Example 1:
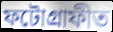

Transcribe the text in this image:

ফটোগ্ৰাফীত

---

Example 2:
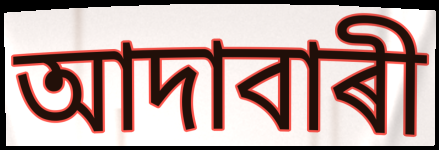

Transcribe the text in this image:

আদাবাৰী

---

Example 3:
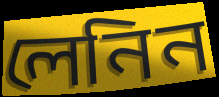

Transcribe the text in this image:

লেনিন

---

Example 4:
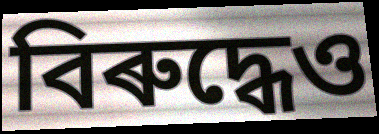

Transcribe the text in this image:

বিৰুদ্ধেও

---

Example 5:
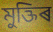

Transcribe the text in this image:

মুক্তিৰ